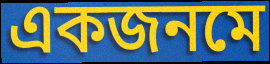
একজনমে